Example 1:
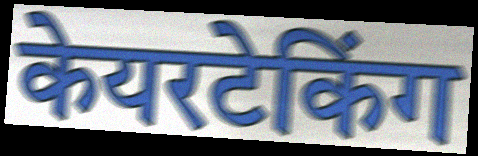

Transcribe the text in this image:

केयरटेकिंग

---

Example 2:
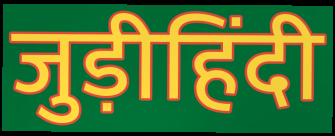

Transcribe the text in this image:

जुड़ीहिंदी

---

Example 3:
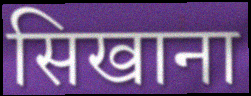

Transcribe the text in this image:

सिखाना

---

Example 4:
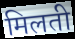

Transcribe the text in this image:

मिलती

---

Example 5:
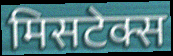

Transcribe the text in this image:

मिसटेक्स